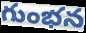
గుంభన